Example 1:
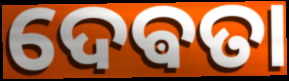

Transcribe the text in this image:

ଦେଵତା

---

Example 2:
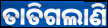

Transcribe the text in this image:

ତାତିଗଲାଣି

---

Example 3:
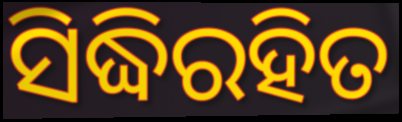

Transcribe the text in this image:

ସିଦ୍ଧିରହିତ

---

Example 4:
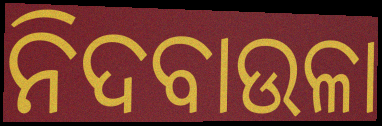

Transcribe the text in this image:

ନିଦବାଉଳା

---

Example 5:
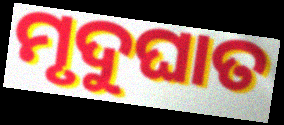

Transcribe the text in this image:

ମୃଦୁଘାତ